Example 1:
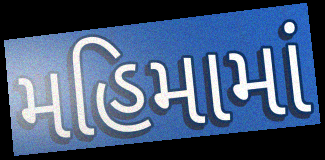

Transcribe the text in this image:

મહિમામાં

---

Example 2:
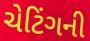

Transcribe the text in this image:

ચેટિંગની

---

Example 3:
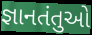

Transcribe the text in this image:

જ્ઞાનતંતુઓ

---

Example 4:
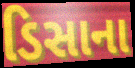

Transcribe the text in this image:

ડિસાના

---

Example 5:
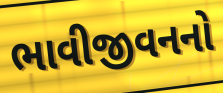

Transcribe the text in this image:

ભાવીજીવનનો